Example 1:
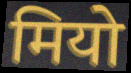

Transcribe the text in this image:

मियो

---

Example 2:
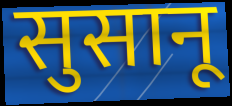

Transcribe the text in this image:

सुसानू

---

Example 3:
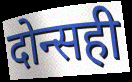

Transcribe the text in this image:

दोन्सही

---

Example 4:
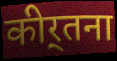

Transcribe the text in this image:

कीर्तना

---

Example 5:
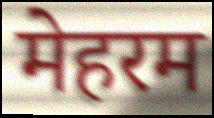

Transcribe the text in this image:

मेहरम